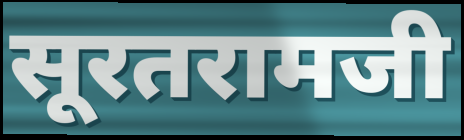
सूरतरामजी